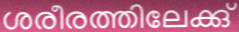
ശരീരത്തിലേക്കു്